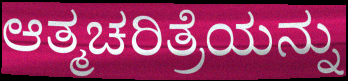
ಆತ್ಮಚರಿತ್ರೆಯನ್ನು